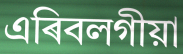
এৰিবলগীয়া